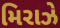
મિરાઝે